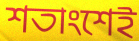
শতাংশেই